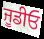
ਜੂਡੀਓ